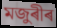
মজুৰীৰ